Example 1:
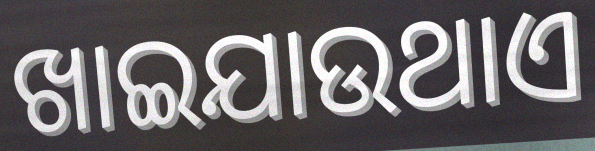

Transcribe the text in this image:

ଖାଇଯାଉଥାଏ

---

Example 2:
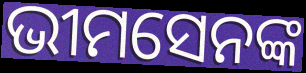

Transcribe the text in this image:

ଭୀମସେନଙ୍କ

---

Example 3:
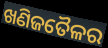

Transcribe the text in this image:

ଖଣିଜତୈଳର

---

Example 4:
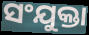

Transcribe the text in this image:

ସଂଯୁକ୍ତା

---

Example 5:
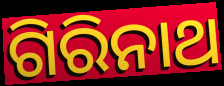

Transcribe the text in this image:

ଗିରିନାଥ